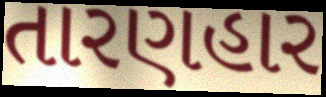
તારણહાર